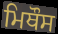
ਮਿਥੌਸ